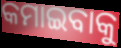
କମାଇବାକୁ